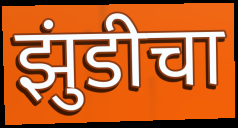
झुंडीचा